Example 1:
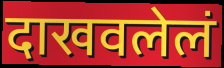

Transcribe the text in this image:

दाखवलेलं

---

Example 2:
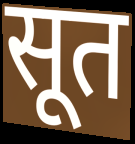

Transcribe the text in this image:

सूत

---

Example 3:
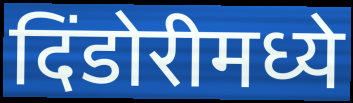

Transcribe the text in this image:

दिंडोरीमध्ये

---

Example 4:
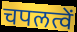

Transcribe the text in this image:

चपलत्वें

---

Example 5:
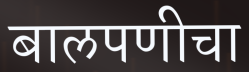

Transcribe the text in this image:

बालपणीचा